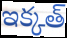
ఇక్కత్